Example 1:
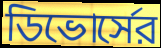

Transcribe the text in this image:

ডিভোর্সের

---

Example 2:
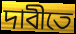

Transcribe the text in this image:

দাবীতে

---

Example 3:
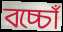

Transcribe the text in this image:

বচ্চোঁ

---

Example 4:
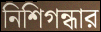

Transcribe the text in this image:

নিশিগন্ধার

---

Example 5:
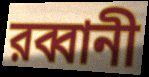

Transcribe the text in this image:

রব্বানী